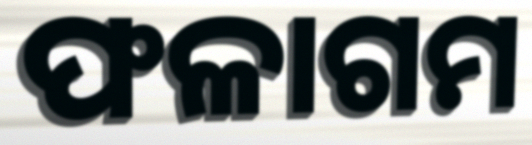
ଫଳାଗମ